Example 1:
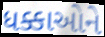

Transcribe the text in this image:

ધક્કાઓને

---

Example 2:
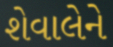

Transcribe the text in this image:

શેવાલેને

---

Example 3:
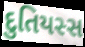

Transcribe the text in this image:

દુતિયસ્સ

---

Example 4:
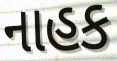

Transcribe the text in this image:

નાહક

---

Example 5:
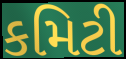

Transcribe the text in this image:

કમિટી